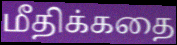
மீதிக்கதை